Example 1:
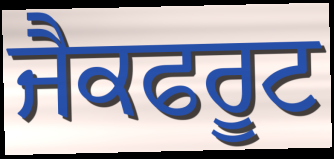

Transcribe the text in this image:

ਜੈਕਫਰੂਟ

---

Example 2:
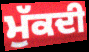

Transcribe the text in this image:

ਮੁੱਕਦੀ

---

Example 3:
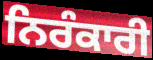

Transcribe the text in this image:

ਨਿਰੰਕਾਰੀ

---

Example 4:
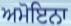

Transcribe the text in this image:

ਅਮੋਇਨਾ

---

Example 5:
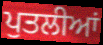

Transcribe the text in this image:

ਪੁਤਲੀਆਂ